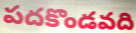
పదకొండవది